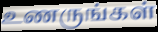
உணருங்கள்